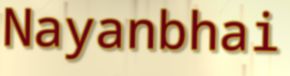
Nayanbhai